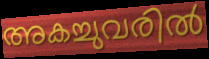
അകച്ചുവരിൽ